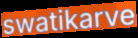
swatikarve